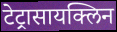
टेट्रासायक्लिन